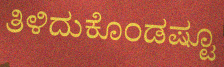
ತಿಳಿದುಕೊಂಡಷ್ಟೂ